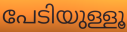
പേടിയുള്ളൂ